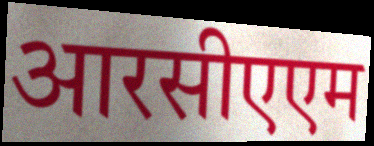
आरसीएएम